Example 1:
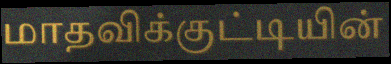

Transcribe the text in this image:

மாதவிக்குட்டியின்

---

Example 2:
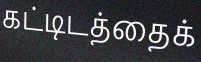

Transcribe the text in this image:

கட்டிடத்தைக்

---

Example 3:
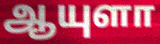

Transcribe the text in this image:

ஆயுளா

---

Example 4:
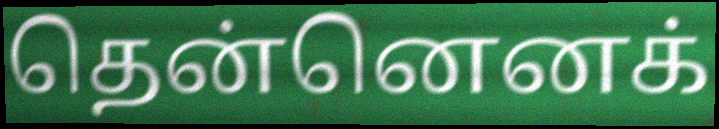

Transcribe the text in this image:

தென்னெனக்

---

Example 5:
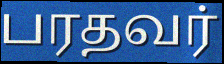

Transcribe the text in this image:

பரதவர்